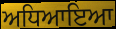
ਅਧਿਆਇਆ